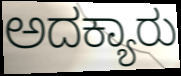
ಅದಕ್ಯಾರು